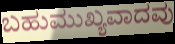
ಬಹುಮುಖ್ಯವಾದವು